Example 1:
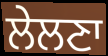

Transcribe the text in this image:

ਲੇਲਣਾ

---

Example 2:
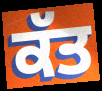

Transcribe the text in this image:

ਕੱਤ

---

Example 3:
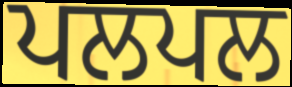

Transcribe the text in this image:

ਪਲਪਲ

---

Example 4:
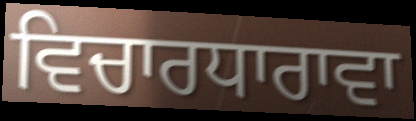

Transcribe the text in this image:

ਵਿਚਾਰਧਾਰਾਵਾ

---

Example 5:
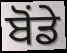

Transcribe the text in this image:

ਬੋਂਡੇ